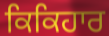
ਕਿਕਿਹਾਰ